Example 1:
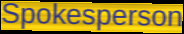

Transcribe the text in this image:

Spokesperson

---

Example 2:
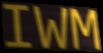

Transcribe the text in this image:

IWM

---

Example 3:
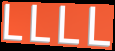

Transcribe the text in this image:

LLLL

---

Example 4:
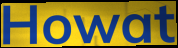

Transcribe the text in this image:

Howat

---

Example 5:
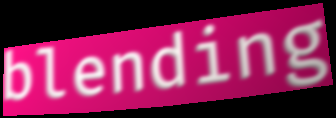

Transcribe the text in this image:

blending